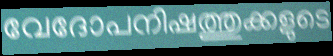
വേദോപനിഷത്തുക്കളുടെ